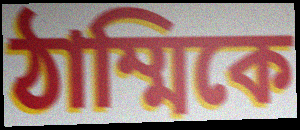
ঠাম্মিকে